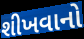
શીખવાનો